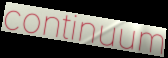
continuum